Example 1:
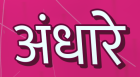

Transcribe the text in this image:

अंधारे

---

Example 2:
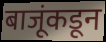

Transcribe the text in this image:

बाजूंकडून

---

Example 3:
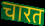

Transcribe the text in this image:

चारत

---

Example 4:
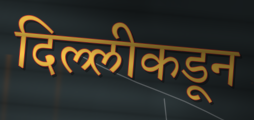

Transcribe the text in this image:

दिल्लीकडून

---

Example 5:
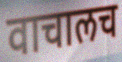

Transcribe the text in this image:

वाचालच